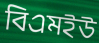
বিএমইউ